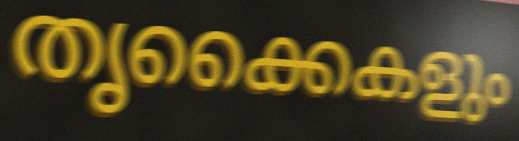
തൃക്കൈകളും